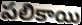
పలికాయి